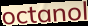
octanol